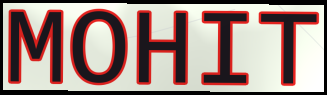
MOHIT